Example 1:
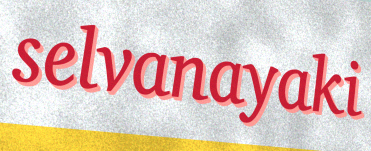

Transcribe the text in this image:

selvanayaki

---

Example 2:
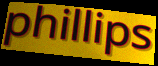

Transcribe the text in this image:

phillips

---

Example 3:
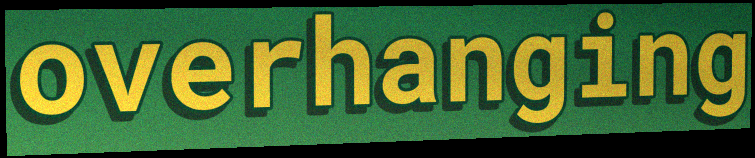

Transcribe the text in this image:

overhanging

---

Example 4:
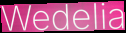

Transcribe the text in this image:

Wedelia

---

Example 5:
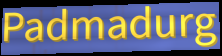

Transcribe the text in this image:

Padmadurg